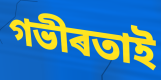
গভীৰতাই